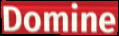
Domine